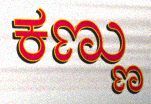
ಕಣ್ಣು